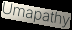
Umapathy